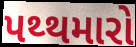
પથ્થમારો